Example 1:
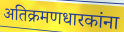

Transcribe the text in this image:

अतिक्रमणधारकांना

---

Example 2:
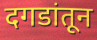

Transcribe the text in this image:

दगडांतून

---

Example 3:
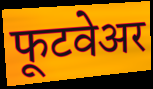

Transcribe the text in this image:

फूटवेअर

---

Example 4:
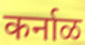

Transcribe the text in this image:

कर्नाळ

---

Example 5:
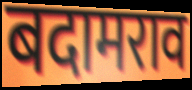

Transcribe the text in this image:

बदामराव